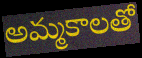
అమ్మకాలతో